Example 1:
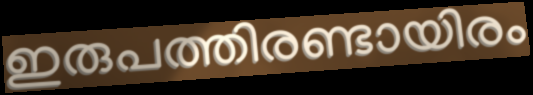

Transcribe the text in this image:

ഇരുപത്തിരണ്ടായിരം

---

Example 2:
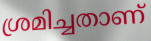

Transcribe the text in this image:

ശ്രമിച്ചതാണ്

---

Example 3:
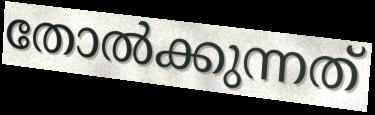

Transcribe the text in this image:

തോൽക്കുന്നത്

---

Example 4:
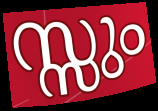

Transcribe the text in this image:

സ്സും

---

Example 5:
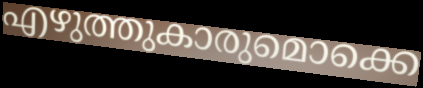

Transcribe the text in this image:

എഴുത്തുകാരുമൊക്കെ